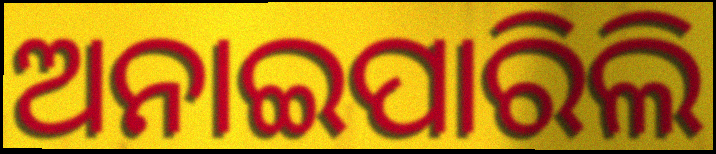
ଅନାଇପାରିଲି